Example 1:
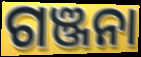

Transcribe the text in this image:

ଗଞ୍ଜନା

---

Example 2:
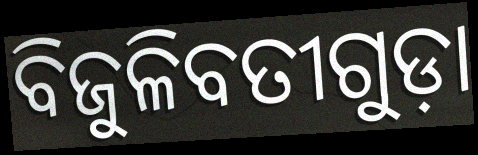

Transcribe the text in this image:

ବିଜୁଳିବତୀଗୁଡ଼ା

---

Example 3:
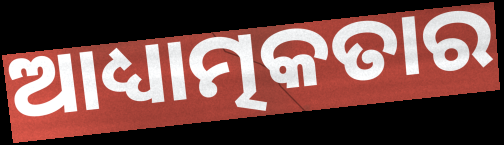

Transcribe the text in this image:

ଆଧ୍ୟାତ୍ମକତାର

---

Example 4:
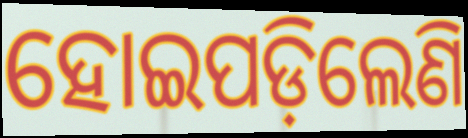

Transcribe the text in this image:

ହୋଇପଡ଼ିଲେଣି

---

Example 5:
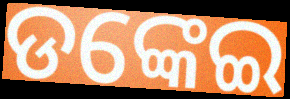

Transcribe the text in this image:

ଡଙ୍କେଇ